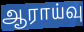
ஆராய்வு